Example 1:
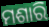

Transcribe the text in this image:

ମଶାରି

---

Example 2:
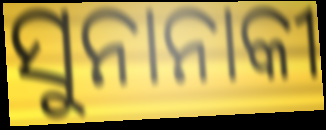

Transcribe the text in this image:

ସୁନାନାକୀ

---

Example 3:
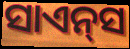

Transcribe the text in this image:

ସାଏନ୍‌ସ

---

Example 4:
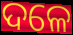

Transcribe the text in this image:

ଦଳେ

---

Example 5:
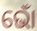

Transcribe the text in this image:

ଭୋଁ